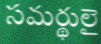
సమర్థులై